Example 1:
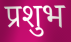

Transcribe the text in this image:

प्रशुभ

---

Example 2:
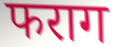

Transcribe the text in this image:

फराग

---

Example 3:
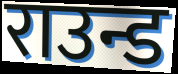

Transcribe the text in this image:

राउन्ड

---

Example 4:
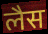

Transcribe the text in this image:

लैस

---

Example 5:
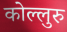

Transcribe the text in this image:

कोल्लुरु